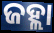
ଜହ୍ଲା